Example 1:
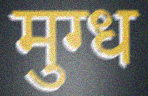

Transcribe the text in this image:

मुग्ध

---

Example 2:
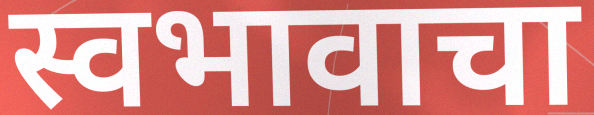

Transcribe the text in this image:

स्वभावाचा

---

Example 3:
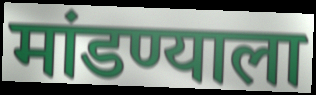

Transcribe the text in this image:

मांडण्याला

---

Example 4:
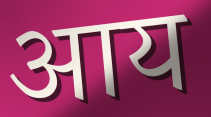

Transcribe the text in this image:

आय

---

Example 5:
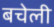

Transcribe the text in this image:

बचेली